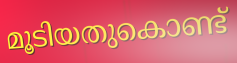
മൂടിയതുകൊണ്ട്